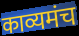
काव्यमंच